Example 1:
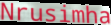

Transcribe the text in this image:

Nrusimha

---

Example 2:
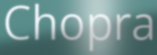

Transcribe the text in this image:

Chopra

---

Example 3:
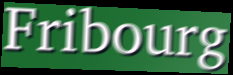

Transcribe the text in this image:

Fribourg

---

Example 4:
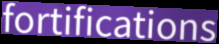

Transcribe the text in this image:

fortifications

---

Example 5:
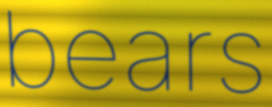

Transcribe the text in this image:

bears